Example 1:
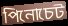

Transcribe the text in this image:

পিনোচেট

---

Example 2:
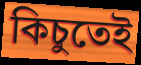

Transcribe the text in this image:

কিচুতেই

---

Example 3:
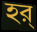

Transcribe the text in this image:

হর্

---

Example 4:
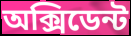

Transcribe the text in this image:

অক্সিডেন্ট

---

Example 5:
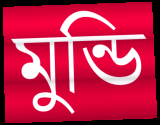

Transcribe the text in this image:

মুন্ডি